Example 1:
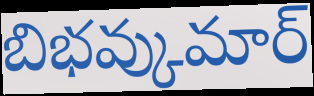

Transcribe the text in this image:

బిభవ్కుమార్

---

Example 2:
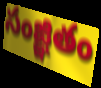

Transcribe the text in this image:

సంజ్ఞితం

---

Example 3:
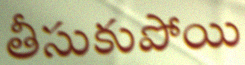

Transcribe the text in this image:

తీసుకుపోయి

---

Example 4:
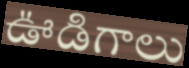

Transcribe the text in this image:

ఊడిగాలు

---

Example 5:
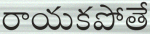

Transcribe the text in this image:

రాయకపోతే